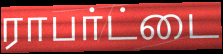
ராபர்ட்டை